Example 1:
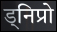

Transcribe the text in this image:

ड्निप्रो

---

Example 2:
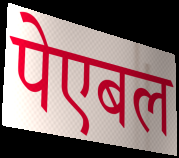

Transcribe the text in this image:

पेएबल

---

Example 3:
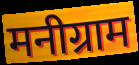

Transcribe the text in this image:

मनीग्राम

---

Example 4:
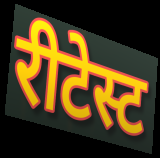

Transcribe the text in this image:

रीटेस्ट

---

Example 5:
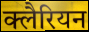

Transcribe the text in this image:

क्लैरियन